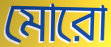
মোরো